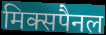
मिक्सपैनल